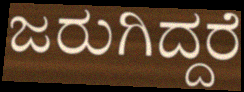
ಜರುಗಿದ್ದರೆ